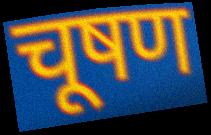
चूषण